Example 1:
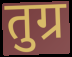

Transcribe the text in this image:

तुग्र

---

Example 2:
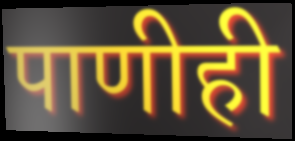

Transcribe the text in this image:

पाणीही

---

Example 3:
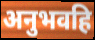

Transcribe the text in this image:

अनुभवहि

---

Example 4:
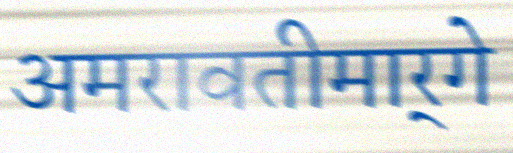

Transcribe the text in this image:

अमरावतीमार्गे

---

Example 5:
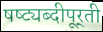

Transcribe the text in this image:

षष्ट्यब्दीपूर्ती